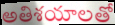
అతిశయాలతో